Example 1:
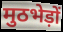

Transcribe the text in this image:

मुठभेड़ों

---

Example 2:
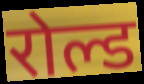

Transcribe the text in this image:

रोल्ड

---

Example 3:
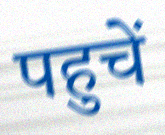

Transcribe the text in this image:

पहुचें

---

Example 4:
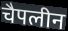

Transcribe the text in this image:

चैपलीन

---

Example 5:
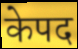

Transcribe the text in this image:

केपद